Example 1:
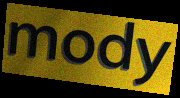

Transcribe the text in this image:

mody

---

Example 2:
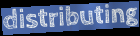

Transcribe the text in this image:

distributing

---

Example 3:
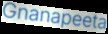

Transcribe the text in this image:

Gnanapeeta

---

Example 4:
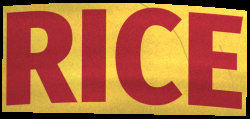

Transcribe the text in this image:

RICE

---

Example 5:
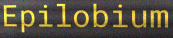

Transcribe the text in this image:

Epilobium